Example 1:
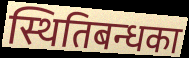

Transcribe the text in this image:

स्थितिबन्धका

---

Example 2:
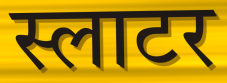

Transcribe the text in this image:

स्लाटर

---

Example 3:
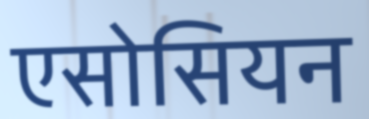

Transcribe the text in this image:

एसोसियन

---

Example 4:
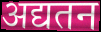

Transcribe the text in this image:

अद्यतन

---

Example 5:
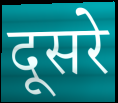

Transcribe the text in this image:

दूसरे